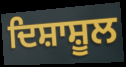
ਦਿਸ਼ਾਸ਼ੂਲ